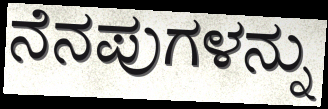
ನೆನಪುಗಳನ್ನು